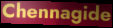
Chennagide